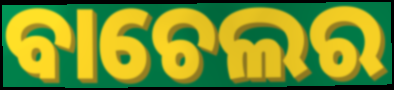
ବାଚେଲର